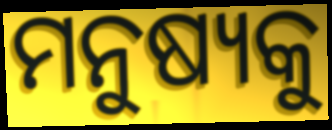
ମନୁଷ୍ୟକୁ